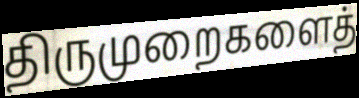
திருமுறைகளைத்